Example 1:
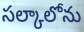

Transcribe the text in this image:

సల్కాలోను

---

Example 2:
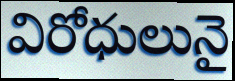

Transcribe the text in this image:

విరోధులునై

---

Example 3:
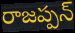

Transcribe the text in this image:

రాజప్పన్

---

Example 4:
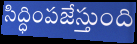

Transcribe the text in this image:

సిద్ధింపజేస్తుంది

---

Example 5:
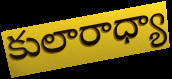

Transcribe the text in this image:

కులారాధ్యా